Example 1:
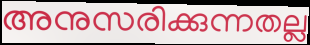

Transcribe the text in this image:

അനുസരിക്കുന്നതല്ല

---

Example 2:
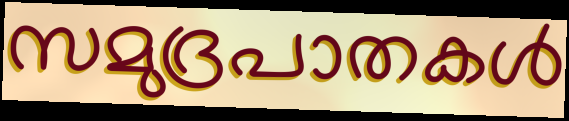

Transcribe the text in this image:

സമുദ്രപാതകൾ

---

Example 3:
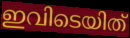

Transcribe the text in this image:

ഇവിടെയിത്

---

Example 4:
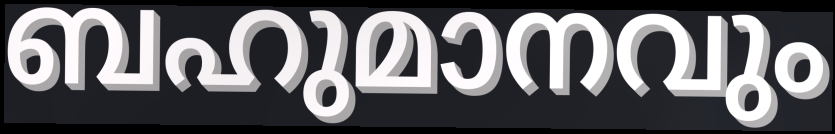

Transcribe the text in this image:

ബഹുമാനവും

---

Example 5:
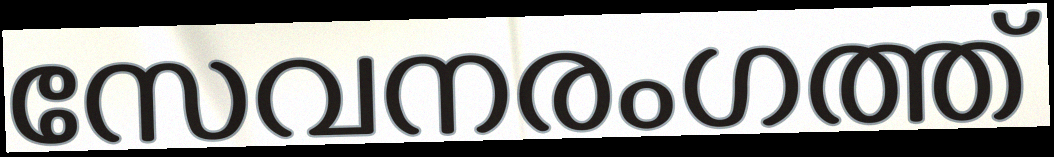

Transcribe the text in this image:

സേവനരംഗത്ത്